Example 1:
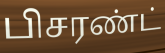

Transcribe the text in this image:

பிசரண்ட்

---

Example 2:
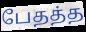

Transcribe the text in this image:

பேதத்த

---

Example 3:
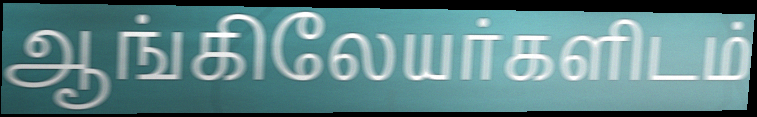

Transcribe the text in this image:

ஆங்கிலேயர்களிடம்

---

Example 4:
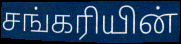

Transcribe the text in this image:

சங்கரியின்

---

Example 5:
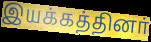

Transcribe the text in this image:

இயக்கத்தினர்